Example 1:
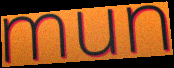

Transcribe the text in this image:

mun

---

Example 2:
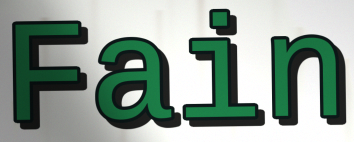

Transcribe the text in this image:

Fain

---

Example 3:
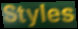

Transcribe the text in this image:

Styles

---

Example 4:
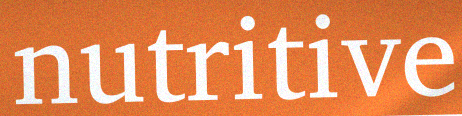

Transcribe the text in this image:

nutritive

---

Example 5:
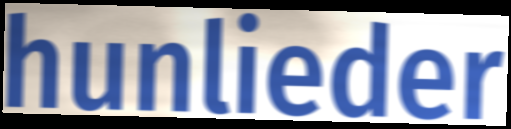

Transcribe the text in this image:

hunlieder